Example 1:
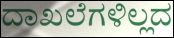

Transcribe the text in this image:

ದಾಖಲೆಗಳಿಲ್ಲದ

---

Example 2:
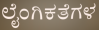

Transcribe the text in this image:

ಲೈಂಗಿಕತೆಗಳ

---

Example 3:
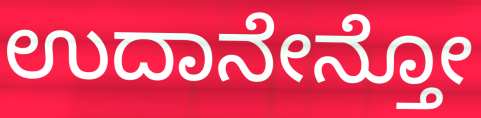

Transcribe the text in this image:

ಉದಾನೇನ್ತೋ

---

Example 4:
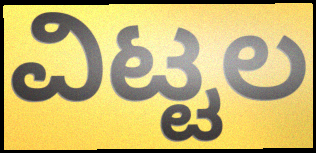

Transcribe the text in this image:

ವಿಟ್ಟಲ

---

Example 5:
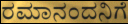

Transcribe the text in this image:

ರಮಾನಂದನಿಗೆ